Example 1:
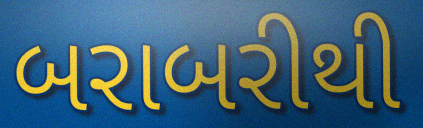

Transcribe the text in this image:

બરાબરીથી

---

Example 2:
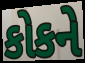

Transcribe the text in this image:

કોકને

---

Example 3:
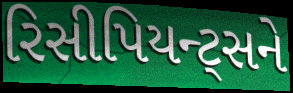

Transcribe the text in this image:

રિસીપિયન્ટ્સને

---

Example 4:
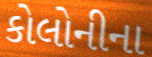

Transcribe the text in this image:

કોલોનીના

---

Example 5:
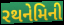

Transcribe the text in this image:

રથનેમિની